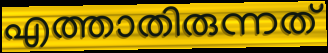
എത്താതിരുന്നത്